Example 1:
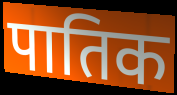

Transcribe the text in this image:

पातिक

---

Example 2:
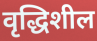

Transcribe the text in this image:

वृद्धिशील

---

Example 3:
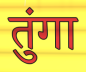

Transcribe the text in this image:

तुंगा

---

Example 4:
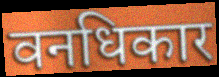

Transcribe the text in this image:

वनधिकार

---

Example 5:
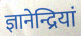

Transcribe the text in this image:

ज्ञानेन्द्रियां